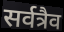
सर्वत्रैव